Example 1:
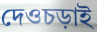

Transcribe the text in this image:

দেওচড়াই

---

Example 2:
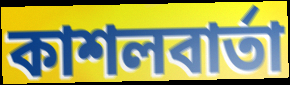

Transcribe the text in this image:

কাশলবার্তা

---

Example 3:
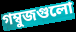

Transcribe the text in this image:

গম্বুজগুলো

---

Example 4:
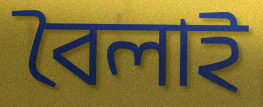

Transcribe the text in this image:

বৈলাই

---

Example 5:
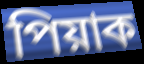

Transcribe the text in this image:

পিয়াক